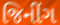
જિનીંગ